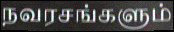
நவரசங்களும்